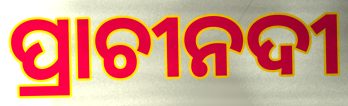
ପ୍ରାଚୀନଦୀ